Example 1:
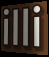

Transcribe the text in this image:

illi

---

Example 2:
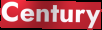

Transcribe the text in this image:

Century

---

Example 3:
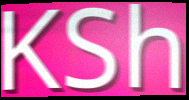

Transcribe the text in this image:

KSh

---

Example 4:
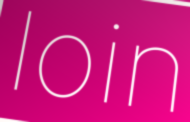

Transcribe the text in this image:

loin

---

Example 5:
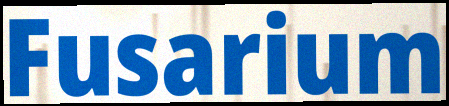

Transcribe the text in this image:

Fusarium